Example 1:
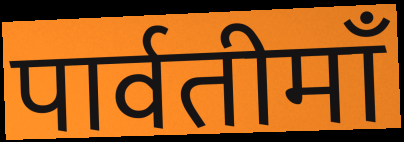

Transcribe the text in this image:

पार्वतीमाँ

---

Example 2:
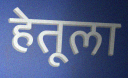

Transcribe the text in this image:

हेतूला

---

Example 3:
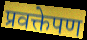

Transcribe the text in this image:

प्रवक्तेपण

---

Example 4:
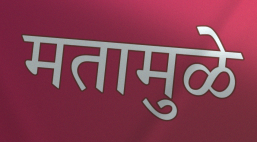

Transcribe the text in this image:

मतामुळे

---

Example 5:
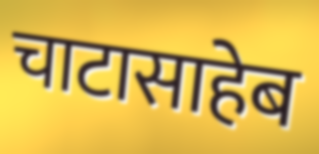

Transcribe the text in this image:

चाटासाहेब